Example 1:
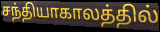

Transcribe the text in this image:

சந்தியாகாலத்தில்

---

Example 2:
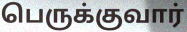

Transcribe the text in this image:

பெருக்குவார்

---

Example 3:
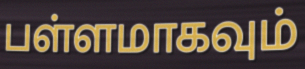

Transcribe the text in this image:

பள்ளமாகவும்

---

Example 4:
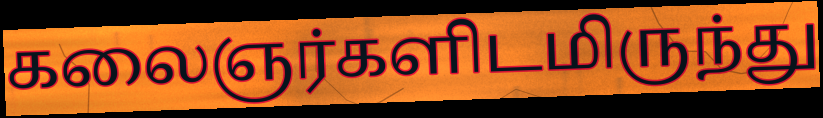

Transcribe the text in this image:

கலைஞர்களிடமிருந்து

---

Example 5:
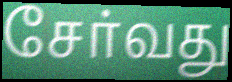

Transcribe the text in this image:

சேர்வது